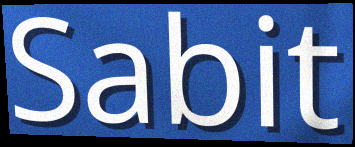
Sabit